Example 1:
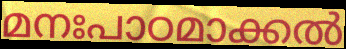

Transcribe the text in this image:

മനഃപാഠമാക്കൽ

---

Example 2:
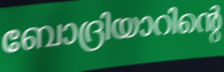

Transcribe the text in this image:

ബോദ്രിയാറിന്റെ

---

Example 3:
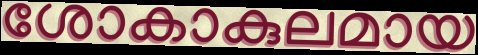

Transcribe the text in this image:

ശോകാകുലമായ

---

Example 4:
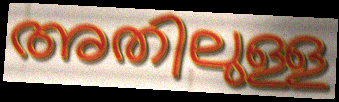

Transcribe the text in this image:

അതിലുള്ള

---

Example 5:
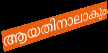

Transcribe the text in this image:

ആയതിനാലാകും